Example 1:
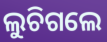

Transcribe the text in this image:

ଲୁଚିଗଲେ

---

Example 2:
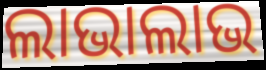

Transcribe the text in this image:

ଲାଭାଲାଭ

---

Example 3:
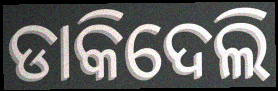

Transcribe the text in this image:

ଡାକିଦେଲି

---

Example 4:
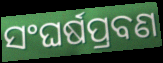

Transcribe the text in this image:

ସଂଘର୍ଷପ୍ରବଣ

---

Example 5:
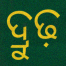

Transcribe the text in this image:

ଦ୍ରୁଢ଼